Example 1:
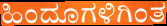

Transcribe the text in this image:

ಹಿಂದೂಗಳಿಗಿಂತ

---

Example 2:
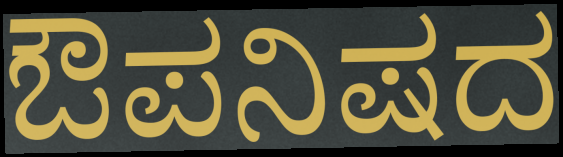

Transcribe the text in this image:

ಔಪನಿಷದ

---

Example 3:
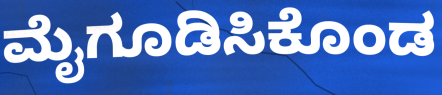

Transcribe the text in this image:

ಮೈಗೂಡಿಸಿಕೊಂಡ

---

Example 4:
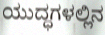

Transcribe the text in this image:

ಯುದ್ಧಗಳಲ್ಲಿನ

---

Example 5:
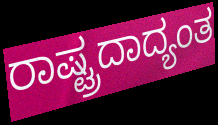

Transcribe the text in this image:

ರಾಷ್ಟ್ರದಾದ್ಯಂತ